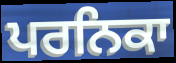
ਪਰਨਿਕਾ